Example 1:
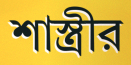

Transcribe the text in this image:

শাস্ত্রীর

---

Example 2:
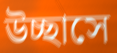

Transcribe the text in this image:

উচ্ছাসে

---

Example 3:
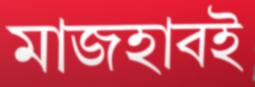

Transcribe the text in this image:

মাজহাবই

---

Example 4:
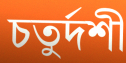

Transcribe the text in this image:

চতুর্দশী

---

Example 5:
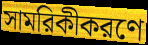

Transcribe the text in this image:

সামরিকীকরণে